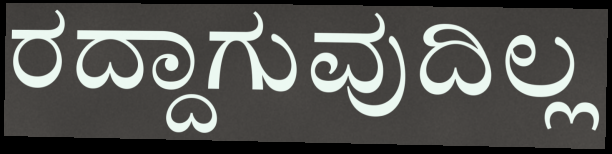
ರದ್ದಾಗುವುದಿಲ್ಲ